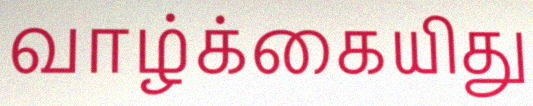
வாழ்க்கையிது